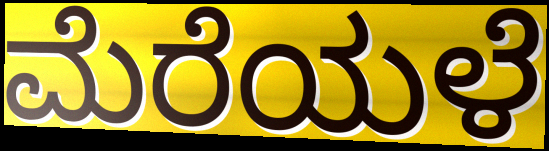
ಮೆರೆಯಳೆ